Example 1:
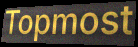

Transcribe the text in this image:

Topmost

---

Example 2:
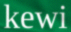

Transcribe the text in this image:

kewi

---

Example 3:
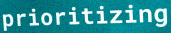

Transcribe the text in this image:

prioritizing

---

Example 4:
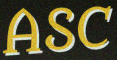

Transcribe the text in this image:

ASC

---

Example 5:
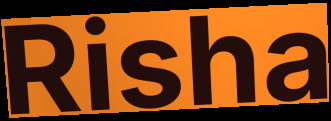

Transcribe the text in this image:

Risha